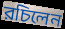
রচিলেন